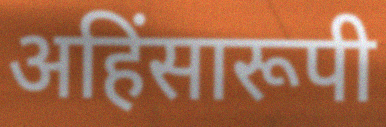
अहिंसारूपी